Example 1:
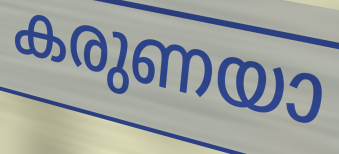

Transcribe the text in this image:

കരുണയാ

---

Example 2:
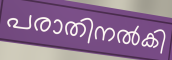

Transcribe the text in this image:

പരാതിനൽകി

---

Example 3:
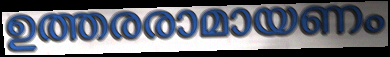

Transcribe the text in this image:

ഉത്തരരാമായണം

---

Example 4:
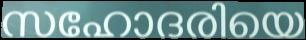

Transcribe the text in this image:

സഹോദരിയെ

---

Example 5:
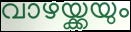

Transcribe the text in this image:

വാഴയ്ക്കയും